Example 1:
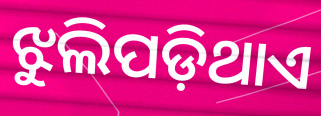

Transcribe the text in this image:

ଝୁଲିପଡ଼ିଥାଏ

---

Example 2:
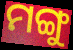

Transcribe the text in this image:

ମଙ୍ଗୁ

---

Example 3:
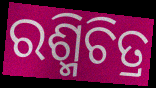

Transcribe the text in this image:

ରଶ୍ମିଚିତ୍ର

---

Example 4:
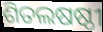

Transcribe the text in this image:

ଶିତଲଷଷ୍ଠୀ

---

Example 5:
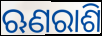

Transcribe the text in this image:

ଋଣରାଶି